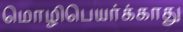
மொழிபெயர்க்காது